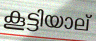
കൂട്ടിയാല്